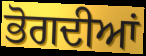
ਭੋਗਦੀਆਂ